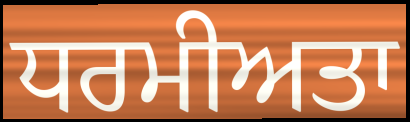
ਧਰਮੀਅਤਾ